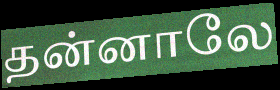
தன்னாலே